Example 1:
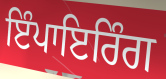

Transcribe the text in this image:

ਇੰਪਾਇਰਿੰਗ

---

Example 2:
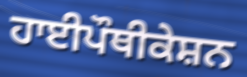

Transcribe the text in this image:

ਹਾਈਪੌਥੀਕੇਸ਼ਨ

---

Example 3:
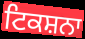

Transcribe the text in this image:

ਟਿਕਸ਼ਨਾ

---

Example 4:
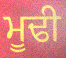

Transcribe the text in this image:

ਮੂਢੀ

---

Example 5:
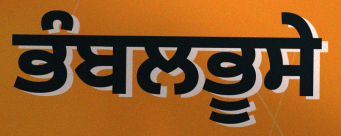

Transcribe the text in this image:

ਭੰਬਲਭੂਸੇ